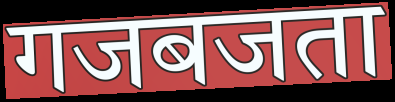
गजबजता